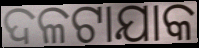
ଦଳଟାଯାକ